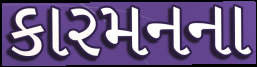
કારમનના